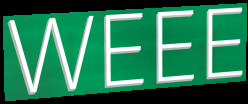
WEEE